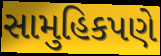
સામુહિકપણે